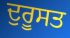
ਦੁਰੂਸਤ